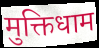
मुक्तिधाम